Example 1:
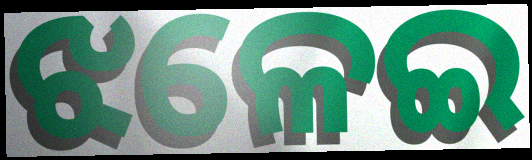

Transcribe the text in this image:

ଝଳେଇ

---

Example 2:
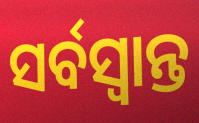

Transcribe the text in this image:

ସର୍ବସ୍ୱାନ୍ତ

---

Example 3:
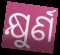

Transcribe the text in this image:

କ୍ଷୁର୍ଣ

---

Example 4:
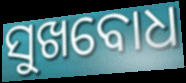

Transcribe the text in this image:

ସୁଖବୋଧ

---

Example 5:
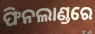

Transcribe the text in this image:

ଫିନଲାଣ୍ଡରେ